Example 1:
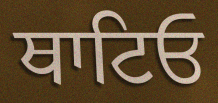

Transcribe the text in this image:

ਥਾਟਿਓ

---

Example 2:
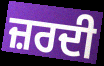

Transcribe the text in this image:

ਜ਼ਰਦੀ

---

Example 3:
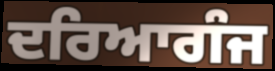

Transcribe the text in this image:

ਦਰਿਆਗੰਜ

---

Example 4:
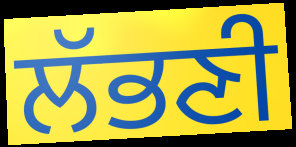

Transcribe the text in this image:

ਲੱਭਣੀ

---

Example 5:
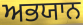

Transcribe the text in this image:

ਅਭਯਾਨ